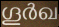
ഗൂർഖ